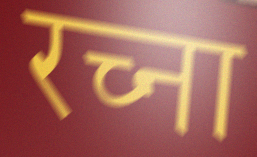
रच्ना